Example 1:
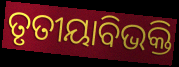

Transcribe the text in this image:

ତୃତୀୟାବିଭକ୍ତି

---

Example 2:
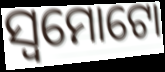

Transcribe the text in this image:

ସ୍ୱମୋଟୋ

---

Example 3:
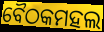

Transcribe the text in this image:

ବୈଠକମହଲ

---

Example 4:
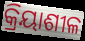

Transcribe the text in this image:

କ୍ରିୟାଶୀଳ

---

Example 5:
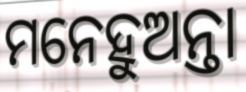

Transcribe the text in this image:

ମନେହୁଅନ୍ତା